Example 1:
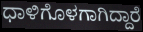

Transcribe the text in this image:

ಧಾಳಿಗೊಳಗಾಗಿದ್ದಾರೆ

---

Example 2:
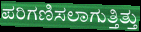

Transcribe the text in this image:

ಪರಿಗಣಿಸಲಾಗುತ್ತಿತ್ತು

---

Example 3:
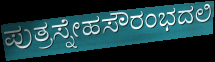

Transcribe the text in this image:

ಪುತ್ರಸ್ನೇಹಸೌರಂಭದಲಿ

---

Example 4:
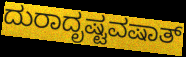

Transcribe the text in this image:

ದುರಾದೃಷ್ಟವಷಾತ್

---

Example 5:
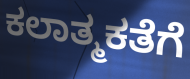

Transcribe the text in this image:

ಕಲಾತ್ಮಕತೆಗೆ